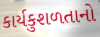
કાર્યકુશળતાનો